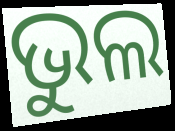
ଭୁଲ